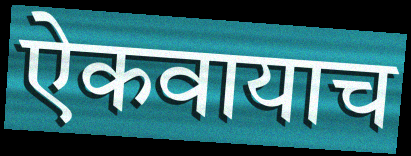
ऐकवायाच